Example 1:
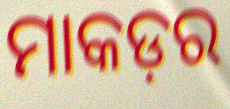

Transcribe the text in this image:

ମାକଡ଼ର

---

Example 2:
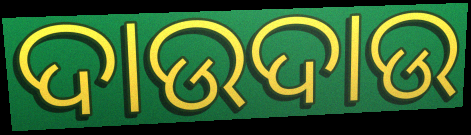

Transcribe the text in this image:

ଦାଉଦାଉ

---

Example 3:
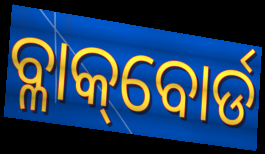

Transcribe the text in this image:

ବ୍ଳାକ୍‌ବୋର୍ଡ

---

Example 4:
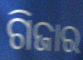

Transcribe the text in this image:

ଗିଜାର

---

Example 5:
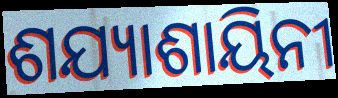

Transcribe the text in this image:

ଶଯ୍ୟାଶାୟିନୀ